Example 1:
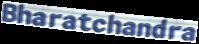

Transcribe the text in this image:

Bharatchandra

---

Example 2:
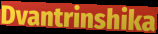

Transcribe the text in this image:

Dvantrinshika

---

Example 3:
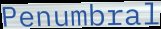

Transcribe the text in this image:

Penumbral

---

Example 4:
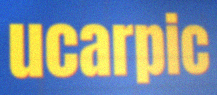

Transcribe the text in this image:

ucarpic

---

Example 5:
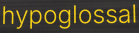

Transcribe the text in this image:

hypoglossal